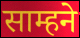
साम्हने